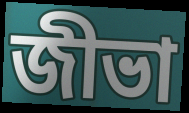
জীভা